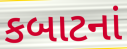
કબાટનાં